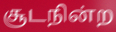
சூடநின்ற